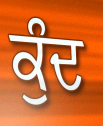
ਕੁੰਦ